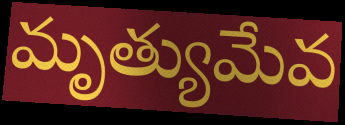
మృత్యుమేవ